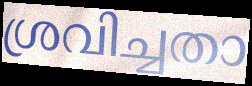
ശ്രവിച്ചതാ